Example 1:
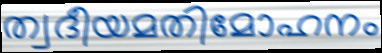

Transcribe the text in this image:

ത്വദീയമതിമോഹനം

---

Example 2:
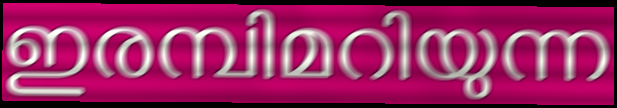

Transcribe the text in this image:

ഇരമ്പിമറിയുന്ന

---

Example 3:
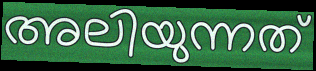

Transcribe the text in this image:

അലിയുന്നത്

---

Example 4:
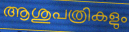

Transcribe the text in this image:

ആശുപത്രികളും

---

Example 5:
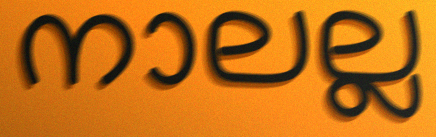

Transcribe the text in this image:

നാലല്ല